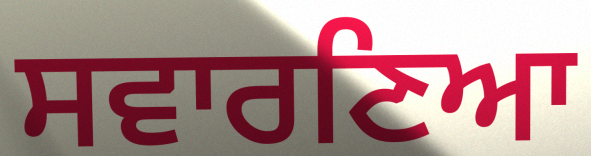
ਸਵਾਰਣਿਆ